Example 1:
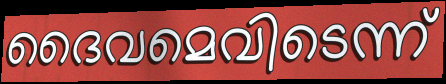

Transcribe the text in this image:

ദൈവമെവിടെന്ന്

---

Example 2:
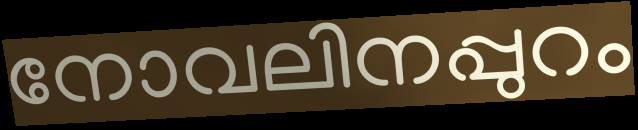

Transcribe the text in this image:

നോവലിനപ്പുറം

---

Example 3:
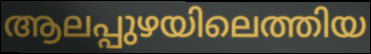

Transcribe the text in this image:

ആലപ്പുഴയിലെത്തിയ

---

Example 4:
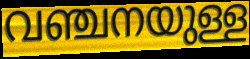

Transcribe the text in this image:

വഞ്ചനയുള്ള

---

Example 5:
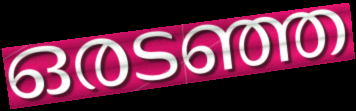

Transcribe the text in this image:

ഒരടഞ്ഞ